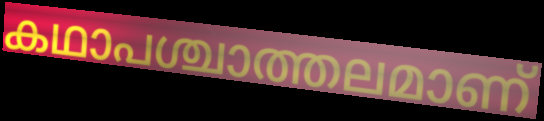
കഥാപശ്ചാത്തലമാണ്